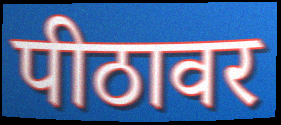
पीठावर